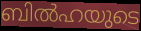
ബിൽഹയുടെ